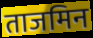
ताजमिन